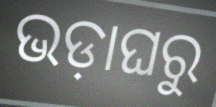
ଭଡ଼ାଘରୁ